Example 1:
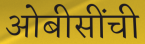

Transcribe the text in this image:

ओबीसींची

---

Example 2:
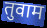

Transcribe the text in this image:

तुवाम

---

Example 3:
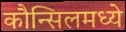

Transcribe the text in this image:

कौन्सिलमध्ये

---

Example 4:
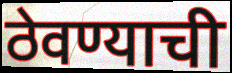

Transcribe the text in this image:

ठेवण्याची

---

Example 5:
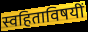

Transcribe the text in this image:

स्वहिताविषयीं